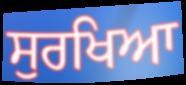
ਸੁਰਖਿਆ